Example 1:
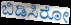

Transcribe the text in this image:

ಬಿಡಿಸಿರೋ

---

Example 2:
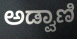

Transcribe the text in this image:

ಅಡ್ವಾಣಿ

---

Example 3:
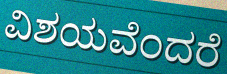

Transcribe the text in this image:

ವಿಶಯವೆಂದರೆ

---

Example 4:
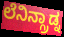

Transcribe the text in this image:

ಲೆನಿನ್ಗ್ರಾಡ್ನ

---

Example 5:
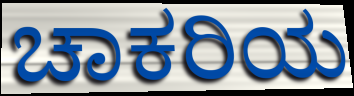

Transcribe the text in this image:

ಚಾಕರಿಯ